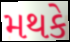
મથકે